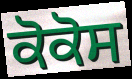
ਕੋਕੋਸ